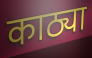
काठ्या